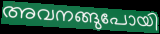
അവനങ്ങുപോയി